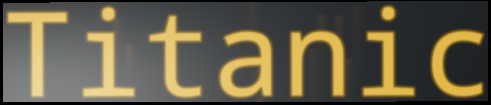
Titanic